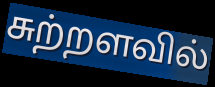
சுற்றளவில்